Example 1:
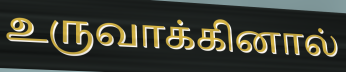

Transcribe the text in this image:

உருவாக்கினால்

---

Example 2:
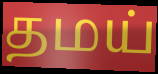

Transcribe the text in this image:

தமய்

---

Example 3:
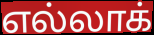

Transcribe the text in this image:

எல்லாக்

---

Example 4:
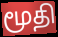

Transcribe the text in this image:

மூதி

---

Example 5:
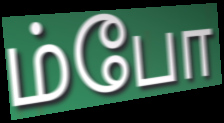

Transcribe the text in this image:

ம்போ